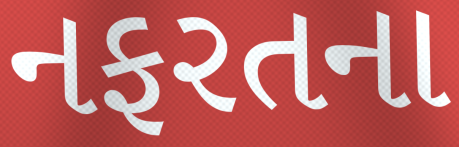
નફરતના